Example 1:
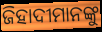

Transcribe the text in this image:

ଜିହାଦୀମାନଙ୍କୁ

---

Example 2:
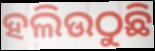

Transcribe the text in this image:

ହଲିଉଠୁଛି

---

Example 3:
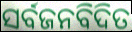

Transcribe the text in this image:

ସର୍ବଜନବିଦିତ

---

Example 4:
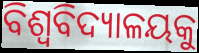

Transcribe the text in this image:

ବିଶ୍ବବିଦ୍ୟାଳୟକୁ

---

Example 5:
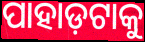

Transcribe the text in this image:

ପାହାଡ଼ଟାକୁ